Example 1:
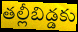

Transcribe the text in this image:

తల్లీబిడ్డకు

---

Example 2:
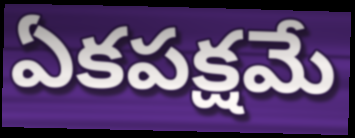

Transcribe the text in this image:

ఏకపక్షమే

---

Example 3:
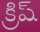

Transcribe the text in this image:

క్రిష్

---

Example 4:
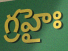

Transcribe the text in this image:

గ్రహైః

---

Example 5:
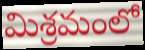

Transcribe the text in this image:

మిశ్రమంలో